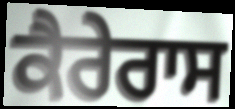
ਕੈਰੇਰਾਸ